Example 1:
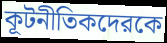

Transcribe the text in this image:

কূটনীতিকদেরকে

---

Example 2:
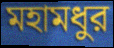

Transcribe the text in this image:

মহামধুর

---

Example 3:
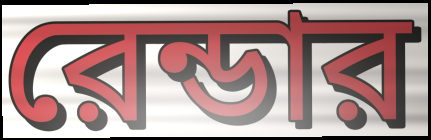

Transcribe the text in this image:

রেন্ডার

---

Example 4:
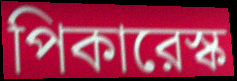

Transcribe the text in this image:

পিকারেস্ক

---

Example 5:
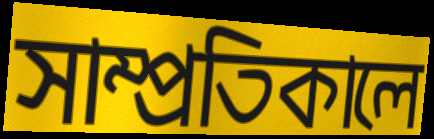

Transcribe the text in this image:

সাম্প্রতিকালে